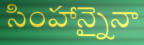
సింహాన్నైనా